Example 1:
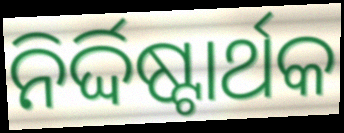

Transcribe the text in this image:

ନିର୍ଦ୍ଦିଷ୍ଟାର୍ଥକ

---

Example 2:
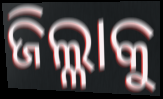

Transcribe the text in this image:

ଜିଲ୍ଳାକୁ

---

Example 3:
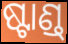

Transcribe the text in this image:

ଷ୍ଟାଣ୍ଡ୍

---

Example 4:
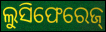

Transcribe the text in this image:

ଲୁସିଫେରେଜ୍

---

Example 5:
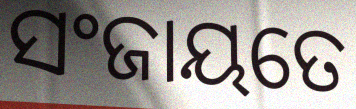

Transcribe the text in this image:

ସଂଜାୟତେ